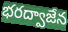
భరద్వాజేన